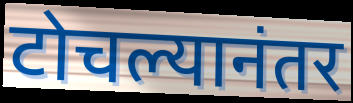
टोचल्यानंतर